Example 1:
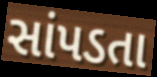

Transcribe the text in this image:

સાંપડતા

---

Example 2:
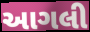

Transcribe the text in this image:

આગલી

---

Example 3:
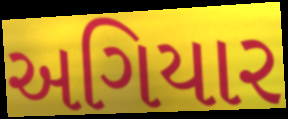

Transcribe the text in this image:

અગિયાર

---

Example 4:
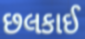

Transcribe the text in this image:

છલકાઈ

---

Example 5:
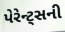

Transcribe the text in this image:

પેરેન્ટ્સની